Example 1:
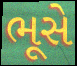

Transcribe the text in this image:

ભૂસે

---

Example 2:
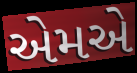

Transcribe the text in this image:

એમએ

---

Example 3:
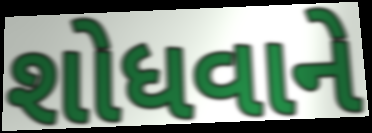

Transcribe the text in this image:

શોધવાને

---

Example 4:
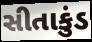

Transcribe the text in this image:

સીતાકુંડ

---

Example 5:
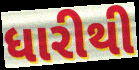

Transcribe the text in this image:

ધારીથી